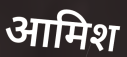
आमिश